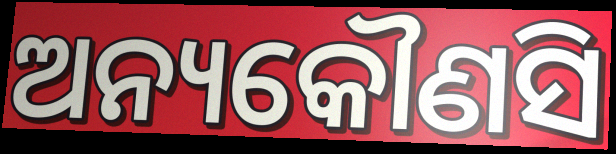
ଅନ୍ୟକୌଣସି